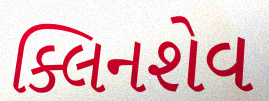
ક્લિનશેવ